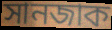
সানজাক